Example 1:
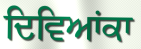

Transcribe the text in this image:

ਦਿਵਿਆਂਕਾ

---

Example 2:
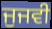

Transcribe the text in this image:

ਜੁਜਵੀ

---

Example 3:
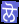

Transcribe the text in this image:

ਲੋ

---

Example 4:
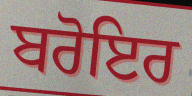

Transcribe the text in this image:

ਬਰੋਇਰ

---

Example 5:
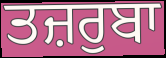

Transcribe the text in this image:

ਤਜ਼ਰੁਬਾ